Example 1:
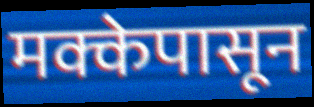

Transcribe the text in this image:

मक्केपासून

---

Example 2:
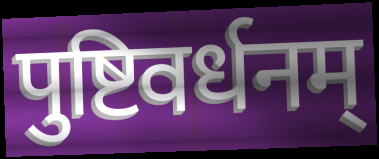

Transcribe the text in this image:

पुष्टिवर्धनम्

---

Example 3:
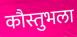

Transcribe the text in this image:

कौस्तुभला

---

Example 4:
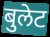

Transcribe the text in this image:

बुलेट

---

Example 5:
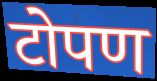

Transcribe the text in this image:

टोपण